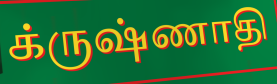
க்ருஷ்ணாதி